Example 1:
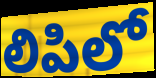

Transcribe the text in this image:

లిపిలో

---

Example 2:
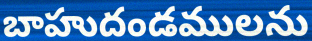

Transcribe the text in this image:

బాహుదండములను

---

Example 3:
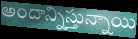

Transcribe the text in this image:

అందాన్నిస్తున్నాయి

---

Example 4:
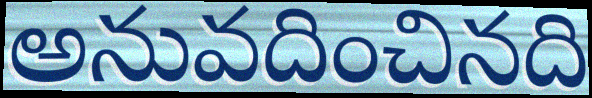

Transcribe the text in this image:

అనువదించినది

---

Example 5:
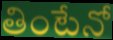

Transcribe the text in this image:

తింటేనో